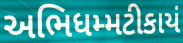
અભિધમ્મટીકાયં